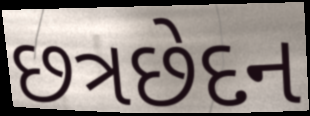
છત્રછેદન